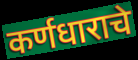
कर्णधाराचे